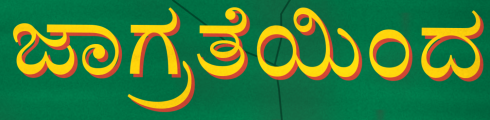
ಜಾಗ್ರತೆಯಿಂದ